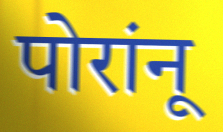
पोरांनू